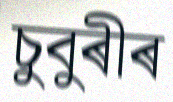
চুবুৰীৰ